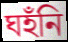
ঘহঁনি